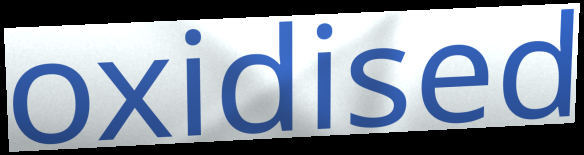
oxidised